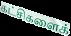
கட்சிகளைக்